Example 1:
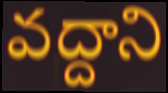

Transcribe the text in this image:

వద్దాని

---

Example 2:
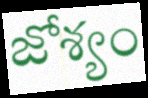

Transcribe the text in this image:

జోశ్యం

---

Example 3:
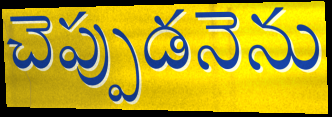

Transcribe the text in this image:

చెప్పుడనెను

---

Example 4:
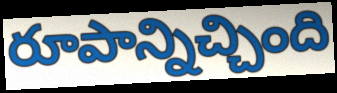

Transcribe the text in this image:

రూపాన్నిచ్చింది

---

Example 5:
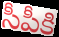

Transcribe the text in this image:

సీపీకి